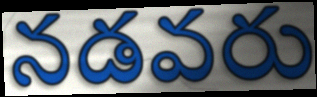
నడవరు